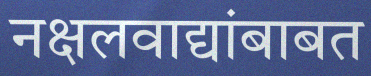
नक्षलवाद्यांबाबत